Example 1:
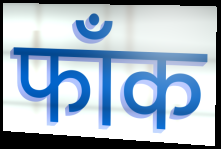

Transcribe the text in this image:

फाँक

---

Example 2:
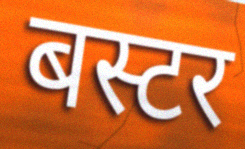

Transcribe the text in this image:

बस्टर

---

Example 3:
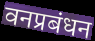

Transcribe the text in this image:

वनप्रबंधन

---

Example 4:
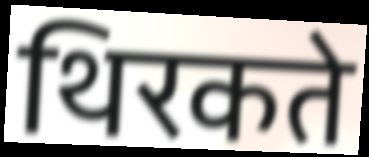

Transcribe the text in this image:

थिरकते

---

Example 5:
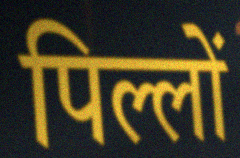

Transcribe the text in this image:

पिल्लों